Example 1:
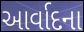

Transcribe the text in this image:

આર્વાદના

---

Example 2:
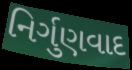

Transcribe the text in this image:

નિર્ગુણવાદ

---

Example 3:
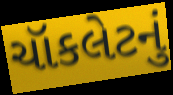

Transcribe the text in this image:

ચૉકલેટનું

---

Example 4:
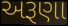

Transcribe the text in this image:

અરૂણા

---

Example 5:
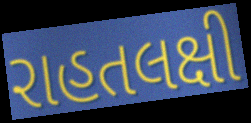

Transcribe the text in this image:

રાહતલક્ષી